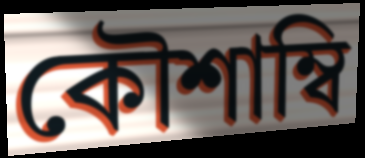
কৌশাম্বি